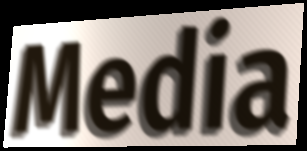
Media